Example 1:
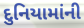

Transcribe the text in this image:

દુનિયામાંની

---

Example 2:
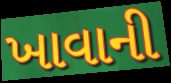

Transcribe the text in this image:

ખાવાની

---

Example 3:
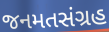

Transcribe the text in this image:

જનમતસંગ્રહ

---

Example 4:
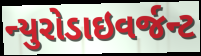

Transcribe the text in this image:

ન્યુરોડાઇવર્જન્ટ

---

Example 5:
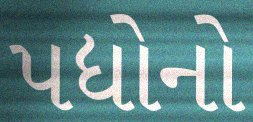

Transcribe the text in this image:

પદ્યોનો